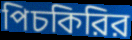
পিচকিরির